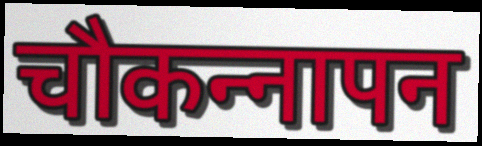
चौकन्नापन